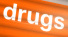
drugs